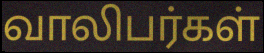
வாலிபர்கள்